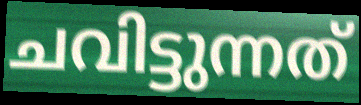
ചവിട്ടുന്നത്